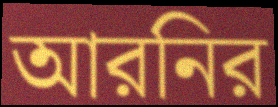
আরনির